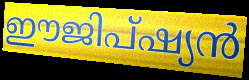
ഈജിപ്ഷ്യൻ